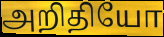
அறிதியோ